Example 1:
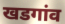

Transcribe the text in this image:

खडगांव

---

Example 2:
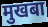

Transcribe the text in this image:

मुखबा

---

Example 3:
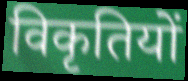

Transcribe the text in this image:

विकृतियों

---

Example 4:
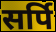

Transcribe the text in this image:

सर्पि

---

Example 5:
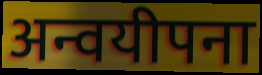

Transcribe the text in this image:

अन्वयीपना